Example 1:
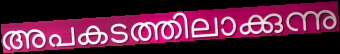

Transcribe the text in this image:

അപകടത്തിലാക്കുന്നു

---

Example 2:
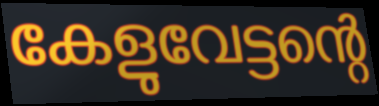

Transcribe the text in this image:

കേളുവേട്ടന്റെ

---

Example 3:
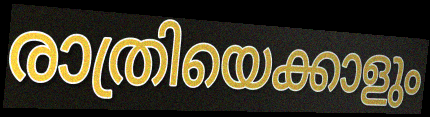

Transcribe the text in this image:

രാത്രിയെക്കാളും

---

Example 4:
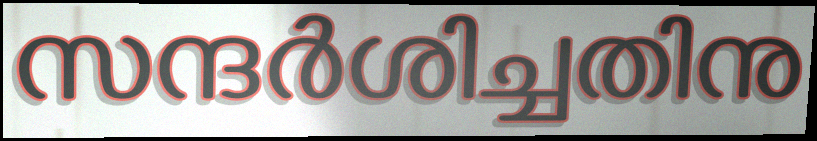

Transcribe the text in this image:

സന്ദർശിച്ചതിനു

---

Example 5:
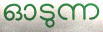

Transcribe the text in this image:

ഓടുന്ന